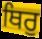
ਥਿਰੁ